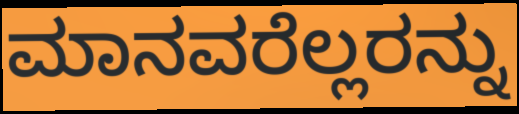
ಮಾನವರೆಲ್ಲರನ್ನು